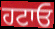
ਹਟਾਓ